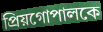
প্রিয়গোপালকে